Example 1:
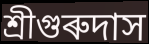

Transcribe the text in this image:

শ্ৰীগুৰুদাস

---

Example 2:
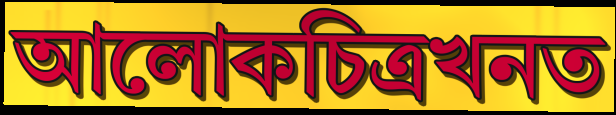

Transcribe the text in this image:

আলোকচিত্ৰখনত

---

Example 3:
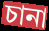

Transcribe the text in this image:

চানা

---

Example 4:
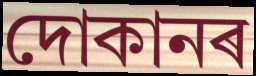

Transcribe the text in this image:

দোকানৰ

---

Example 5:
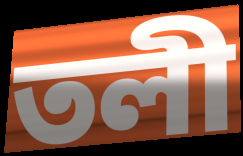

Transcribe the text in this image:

তলী